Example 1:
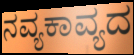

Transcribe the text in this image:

ನವ್ಯಕಾವ್ಯದ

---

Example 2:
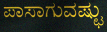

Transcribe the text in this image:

ಪಾಸಾಗುವಷ್ಟು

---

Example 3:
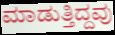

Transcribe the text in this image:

ಮಾಡುತ್ತಿದ್ದವು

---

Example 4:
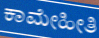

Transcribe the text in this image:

ಕಾಮೇಹೀತಿ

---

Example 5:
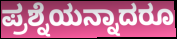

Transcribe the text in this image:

ಪ್ರಶ್ನೆಯನ್ನಾದರೂ